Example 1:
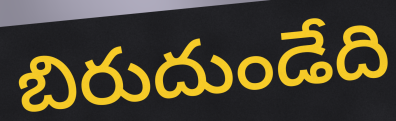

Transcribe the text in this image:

బిరుదుండేది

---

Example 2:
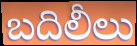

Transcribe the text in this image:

బదిలీలు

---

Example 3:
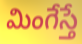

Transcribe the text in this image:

మింగేస్తే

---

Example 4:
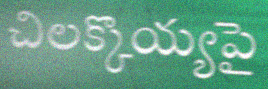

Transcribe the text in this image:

చిలక్కొయ్యపై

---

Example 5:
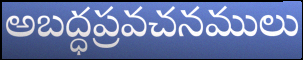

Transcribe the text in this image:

అబద్ధప్రవచనములు